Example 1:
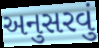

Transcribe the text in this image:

અનુસરવું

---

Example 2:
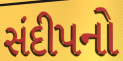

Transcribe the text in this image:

સંદીપનો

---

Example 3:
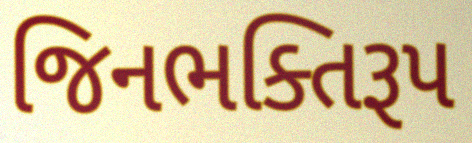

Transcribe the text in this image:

જિનભક્તિરૂપ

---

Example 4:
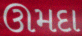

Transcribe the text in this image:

ઊમદા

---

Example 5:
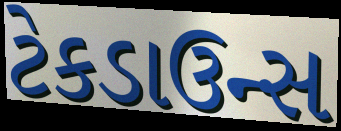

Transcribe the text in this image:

ટેકડાઉન્સ